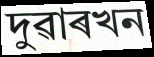
দুৱাৰখন